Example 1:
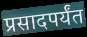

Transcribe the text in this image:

प्रसादपर्यंत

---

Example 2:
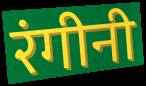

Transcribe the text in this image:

रंगीनी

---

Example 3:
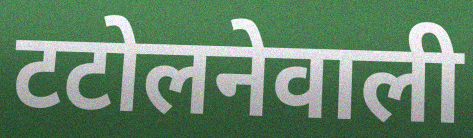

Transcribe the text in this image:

टटोलनेवाली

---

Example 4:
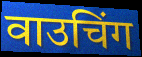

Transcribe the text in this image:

वाउचिंग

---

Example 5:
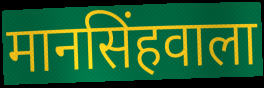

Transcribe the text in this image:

मानसिंहवाला